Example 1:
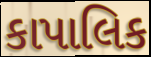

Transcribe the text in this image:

કાપાલિક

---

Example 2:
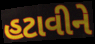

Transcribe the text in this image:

હટાવીને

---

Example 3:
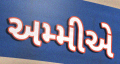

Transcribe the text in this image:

અમ્મીએ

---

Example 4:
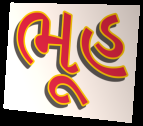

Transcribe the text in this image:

ભૂહ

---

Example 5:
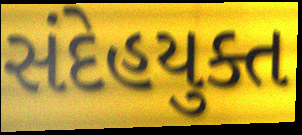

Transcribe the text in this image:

સંદેહયુક્ત